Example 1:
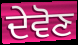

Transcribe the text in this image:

ਦੇਵੋਣ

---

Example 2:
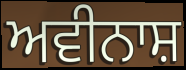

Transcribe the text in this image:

ਅਵੀਨਾਸ਼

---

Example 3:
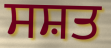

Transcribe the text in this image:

ਸਸ਼ਤ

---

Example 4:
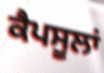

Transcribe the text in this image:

ਕੈਪਸੂਲਾਂ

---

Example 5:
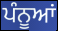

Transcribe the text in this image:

ਪੰਨੂਆਂ